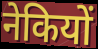
नेकियों